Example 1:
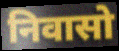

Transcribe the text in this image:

निवासो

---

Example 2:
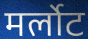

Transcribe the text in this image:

मर्लोट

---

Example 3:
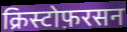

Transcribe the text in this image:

क्रिस्टोफ़रसन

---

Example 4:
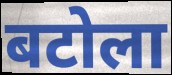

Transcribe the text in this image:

बटोला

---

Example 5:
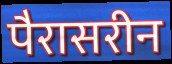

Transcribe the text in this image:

पैरासरीन